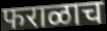
फराळाच